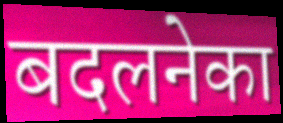
बदलनेका